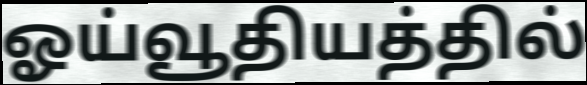
ஓய்வூதியத்தில்